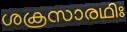
ശക്രസാരഥിഃ